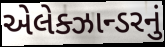
એલેક્ઝાન્ડરનું